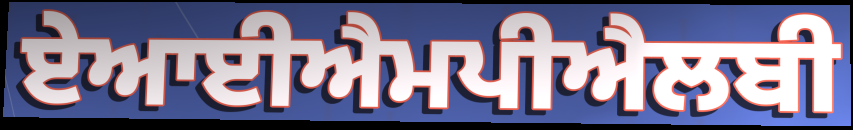
ਏਆਈਐਮਪੀਐਲਬੀ